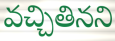
వచ్చితినని